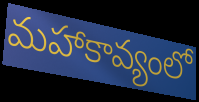
మహాకావ్యంలో